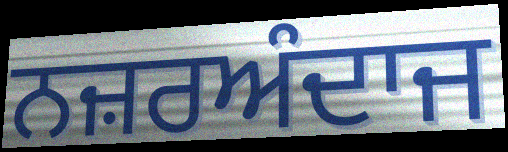
ਨਜ਼ਰਅੰਦਾਜ